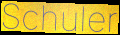
Schuler